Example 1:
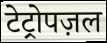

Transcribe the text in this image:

टेट्रोपज़ल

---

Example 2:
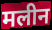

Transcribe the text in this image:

मलीन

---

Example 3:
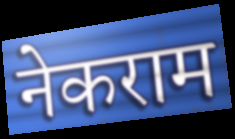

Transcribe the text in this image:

नेकराम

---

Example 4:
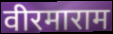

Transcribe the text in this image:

वीरमाराम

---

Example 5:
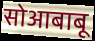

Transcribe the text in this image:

सोआबाबू